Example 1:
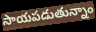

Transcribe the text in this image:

సాయపడుతున్నాం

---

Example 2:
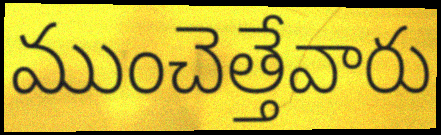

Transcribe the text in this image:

ముంచెత్తేవారు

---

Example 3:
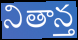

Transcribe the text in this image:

నితాన్త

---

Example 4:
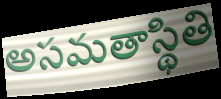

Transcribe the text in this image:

అసమతాస్థితి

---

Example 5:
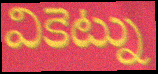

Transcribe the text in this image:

వికెట్ను